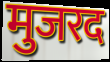
मुजरद